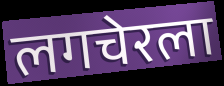
लगचेरला